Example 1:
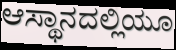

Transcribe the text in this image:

ಆಸ್ಥಾನದಲ್ಲಿಯೂ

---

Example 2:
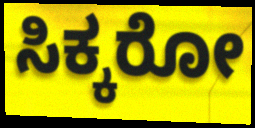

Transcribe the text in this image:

ಸಿಕ್ಕರೋ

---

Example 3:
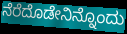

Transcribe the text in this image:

ನೆರೆದೊಡೇನಿನ್ನೊಂದು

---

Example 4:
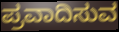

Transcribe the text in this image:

ಪ್ರವಾದಿಸುವ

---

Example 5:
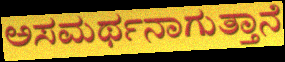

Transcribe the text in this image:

ಅಸಮರ್ಥನಾಗುತ್ತಾನೆ